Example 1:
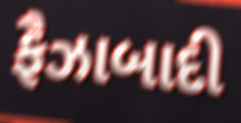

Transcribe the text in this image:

ફૈઝાબાદી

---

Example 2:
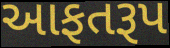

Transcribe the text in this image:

આફતરૂપ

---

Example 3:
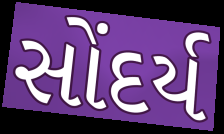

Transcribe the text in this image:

સોંદર્ય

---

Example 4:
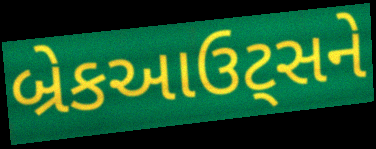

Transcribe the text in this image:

બ્રેકઆઉટ્સને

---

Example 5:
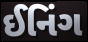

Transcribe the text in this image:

ઈનિંગ